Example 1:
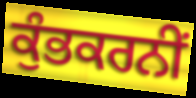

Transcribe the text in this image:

ਕੁੰਭਕਰਨੀਂ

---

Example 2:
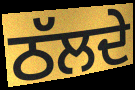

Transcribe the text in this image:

ਠੱਲਦੇ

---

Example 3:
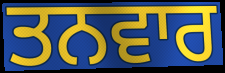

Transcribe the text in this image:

ਤਨਵਾਰ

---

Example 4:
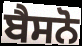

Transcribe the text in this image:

ਬੈਸਨੋ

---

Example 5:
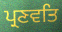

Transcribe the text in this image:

ਪ੍ਰਣਵਤਿ